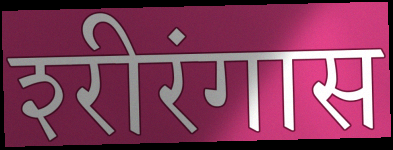
श्रीरंगास